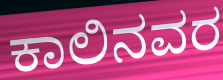
ಕಾಲಿನವರ